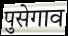
पुसेगाव